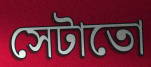
সেটাতো